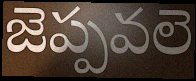
జెప్పవలె